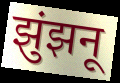
झुंझनू